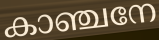
കാഞ്ചനേ